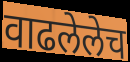
वाढलेलेच